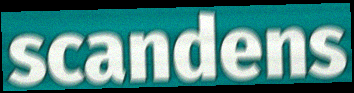
scandens